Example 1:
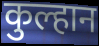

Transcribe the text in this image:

कुल्हान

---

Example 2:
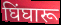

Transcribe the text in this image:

घिंघारू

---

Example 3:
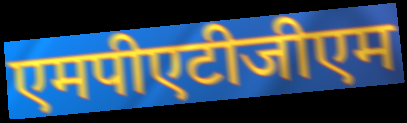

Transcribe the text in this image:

एमपीएटीजीएम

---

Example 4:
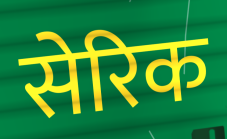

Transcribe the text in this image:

सेरिक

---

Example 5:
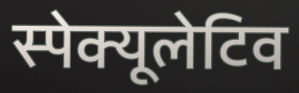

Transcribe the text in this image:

स्पेक्यूलेटिव